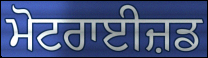
ਮੋਟਰਾਈਜ਼ਡ